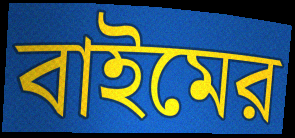
বাইমের